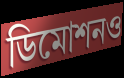
ডিমোশনও